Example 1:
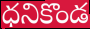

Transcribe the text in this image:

ధనికొండ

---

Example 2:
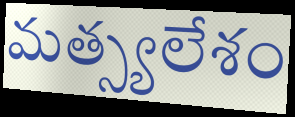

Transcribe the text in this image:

మత్స్యలేశం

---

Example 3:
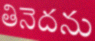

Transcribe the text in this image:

తినెదను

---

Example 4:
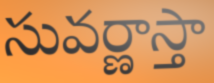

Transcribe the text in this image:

సువర్ణాస్తా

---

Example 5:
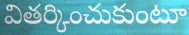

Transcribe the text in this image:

వితర్కించుకుంటూ